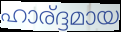
ഹാര്ദ്ദമായ